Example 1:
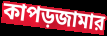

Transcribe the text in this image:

কাপড়জামার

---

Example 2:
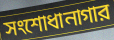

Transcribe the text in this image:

সংশোধানাগার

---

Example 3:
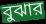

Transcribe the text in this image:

বুঝার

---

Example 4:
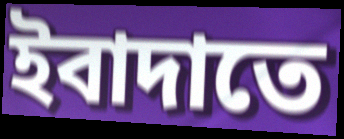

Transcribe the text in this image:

ইবাদাতে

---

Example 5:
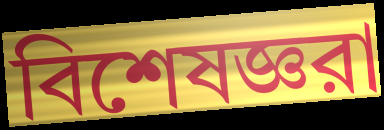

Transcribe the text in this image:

বিশেষজ্ঞরা